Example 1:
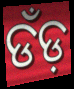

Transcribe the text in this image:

ଡଁଡ଼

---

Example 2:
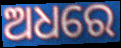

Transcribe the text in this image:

ଅଧରେ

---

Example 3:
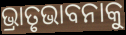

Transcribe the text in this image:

ଭ୍ରାତୃଭାବନାକୁ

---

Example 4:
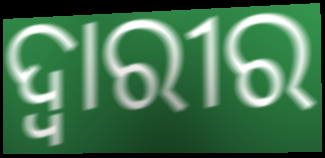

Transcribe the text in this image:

ଦ୍ୱାରୀର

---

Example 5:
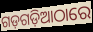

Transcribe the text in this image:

ଗଡ଼ଗଡ଼ିଆଠାରେ